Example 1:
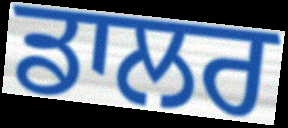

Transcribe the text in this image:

ਡਾਲਰ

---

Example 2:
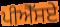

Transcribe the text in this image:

ਪੀਐੱਸਏ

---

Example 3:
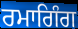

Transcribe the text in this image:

ਰਮਾਗਿੰਗ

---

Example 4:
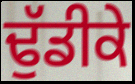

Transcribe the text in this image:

ਢੁੱਡੀਕੇ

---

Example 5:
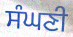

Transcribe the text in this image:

ਸੰਘਣੀ